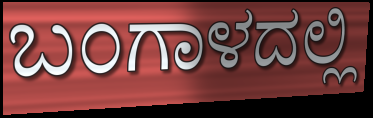
ಬಂಗಾಳದಲ್ಲಿ